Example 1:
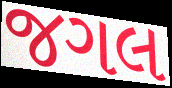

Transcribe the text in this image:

જગલ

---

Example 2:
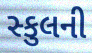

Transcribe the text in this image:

સ્કુલની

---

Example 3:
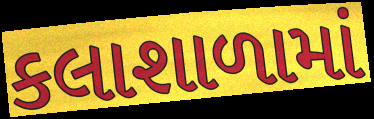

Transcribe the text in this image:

કલાશાળામાં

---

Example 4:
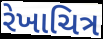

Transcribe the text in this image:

રેખાચિત્ર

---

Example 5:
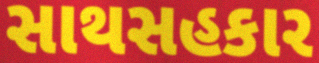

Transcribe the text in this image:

સાથસહકાર